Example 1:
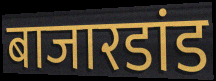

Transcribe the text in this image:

बाजारडांड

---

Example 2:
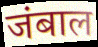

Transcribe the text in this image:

जंबाल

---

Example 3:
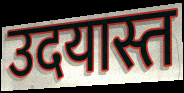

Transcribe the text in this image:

उदयास्त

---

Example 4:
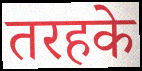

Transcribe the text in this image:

तरहके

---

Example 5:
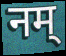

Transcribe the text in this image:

नम्